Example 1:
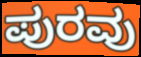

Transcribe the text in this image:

ಪುರವು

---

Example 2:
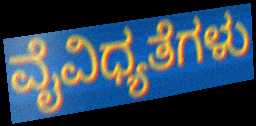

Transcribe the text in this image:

ವೈವಿಧ್ಯತೆಗಳು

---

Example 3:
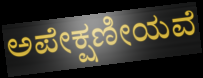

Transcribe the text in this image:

ಅಪೇಕ್ಷಣೀಯವೆ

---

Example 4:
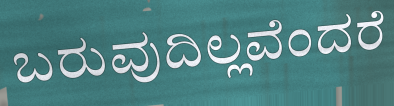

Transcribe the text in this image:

ಬರುವುದಿಲ್ಲವೆಂದರೆ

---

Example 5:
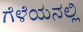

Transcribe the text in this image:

ಗೆಳೆಯನಲ್ಲಿ